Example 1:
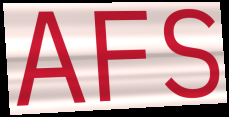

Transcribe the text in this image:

AFS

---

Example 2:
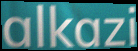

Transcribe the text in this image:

alkazi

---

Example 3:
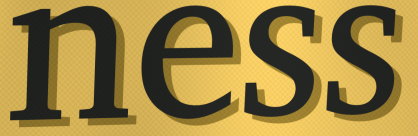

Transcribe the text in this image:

ness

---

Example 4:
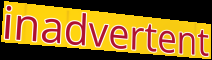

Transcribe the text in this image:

inadvertent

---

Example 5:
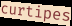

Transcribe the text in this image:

curtipes